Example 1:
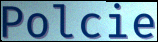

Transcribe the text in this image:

Polcie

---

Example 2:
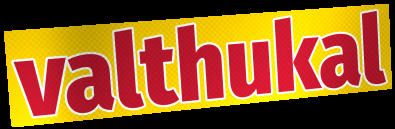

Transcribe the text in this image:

valthukal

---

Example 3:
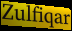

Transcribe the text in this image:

Zulfiqar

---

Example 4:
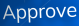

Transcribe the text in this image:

Approve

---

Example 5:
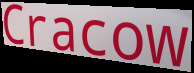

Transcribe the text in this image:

Cracow